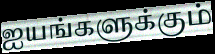
ஐயங்களுக்கும்